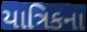
યાત્રિકના